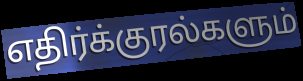
எதிர்க்குரல்களும்